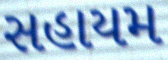
સહાયમ